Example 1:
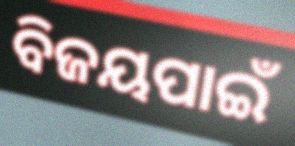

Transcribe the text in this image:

ବିଜୟପାଇଁ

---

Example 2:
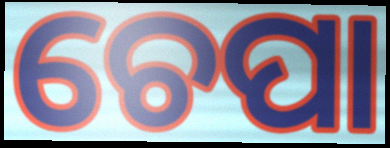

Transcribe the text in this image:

ଚେପା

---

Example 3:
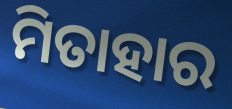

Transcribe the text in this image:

ମିତାହାର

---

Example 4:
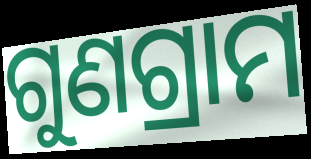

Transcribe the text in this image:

ଗୁଣଗ୍ରାମ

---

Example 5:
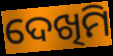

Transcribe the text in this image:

ଦେଖିମି